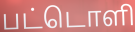
பட்டொளி